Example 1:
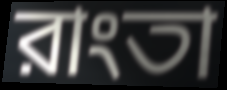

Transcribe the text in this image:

রাংতা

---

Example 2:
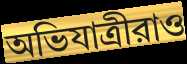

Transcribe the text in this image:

অভিযাত্রীরাও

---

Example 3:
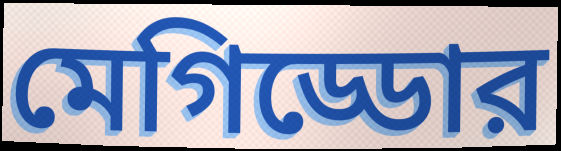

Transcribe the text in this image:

মেগিড্ডোর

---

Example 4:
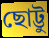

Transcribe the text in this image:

ছোট্টু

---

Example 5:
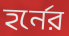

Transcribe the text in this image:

হর্নের